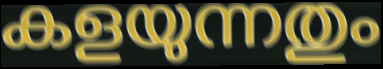
കളയുന്നതും